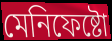
মেনিফেষ্টো